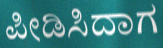
ಪೀಡಿಸಿದಾಗ